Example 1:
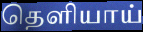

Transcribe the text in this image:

தெளியாய்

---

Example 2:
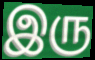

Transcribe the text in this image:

இரு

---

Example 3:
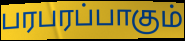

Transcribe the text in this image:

பரபரப்பாகும்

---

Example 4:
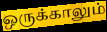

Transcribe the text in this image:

ஒருக்காலும்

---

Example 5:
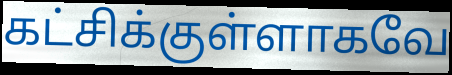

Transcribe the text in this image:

கட்சிக்குள்ளாகவே